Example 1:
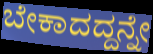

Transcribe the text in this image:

ಬೇಕಾದದ್ದನ್ನೇ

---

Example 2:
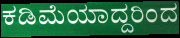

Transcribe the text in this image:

ಕಡಿಮೆಯಾದ್ದರಿಂದ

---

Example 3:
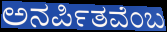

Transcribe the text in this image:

ಅನರ್ಪಿತವೆಂಬ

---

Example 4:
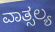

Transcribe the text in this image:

ವಾತ್ಸಲ್ಯ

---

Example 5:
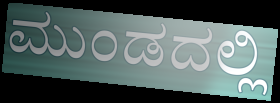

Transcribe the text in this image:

ಮುಂಡದಲ್ಲಿ